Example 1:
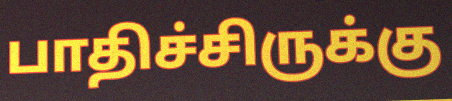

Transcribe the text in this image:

பாதிச்சிருக்கு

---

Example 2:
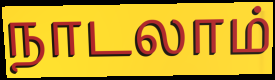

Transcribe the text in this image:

நாடலாம்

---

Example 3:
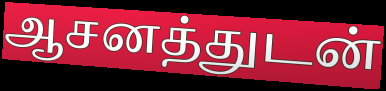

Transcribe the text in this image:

ஆசனத்துடன்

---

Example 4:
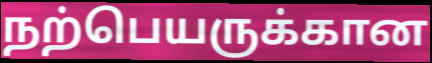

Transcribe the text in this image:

நற்பெயருக்கான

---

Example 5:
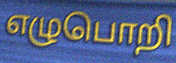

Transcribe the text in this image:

எழுபொறி